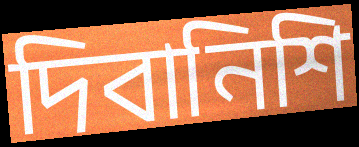
দিবানিশি